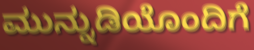
ಮುನ್ನುಡಿಯೊಂದಿಗೆ